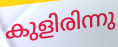
കുളിരിന്നു